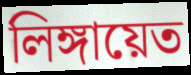
লিঙ্গায়েত